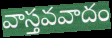
వాస్తవవాదం